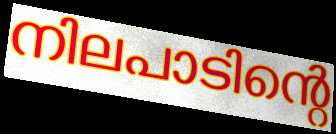
നിലപാടിന്റെ